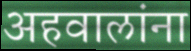
अहवालांना